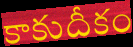
కాకుదీకం